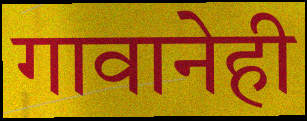
गावानेही